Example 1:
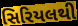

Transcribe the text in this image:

સિરિયલથી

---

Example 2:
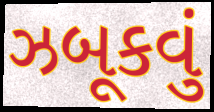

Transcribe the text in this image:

ઝબૂકવું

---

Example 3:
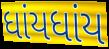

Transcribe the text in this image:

ધાંયધાંય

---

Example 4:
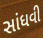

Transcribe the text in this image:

સાંધવી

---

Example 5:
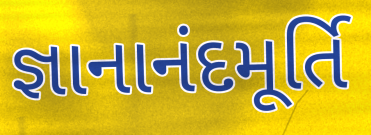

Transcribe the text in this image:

જ્ઞાનાનંદમૂર્તિ